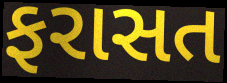
ફરાસત